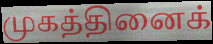
முகத்தினைக்